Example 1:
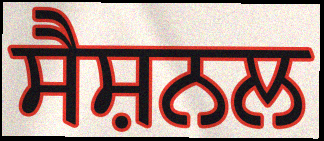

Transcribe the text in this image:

ਸੈਸ਼ਨਲ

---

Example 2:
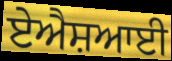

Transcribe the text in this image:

ਏਐਸ਼ਆਈ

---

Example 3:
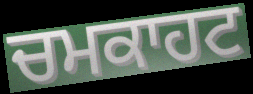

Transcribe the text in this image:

ਚਮਕਾਹਟ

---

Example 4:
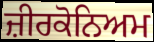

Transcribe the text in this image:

ਜ਼ੀਰਕੋਨਿਅਮ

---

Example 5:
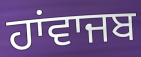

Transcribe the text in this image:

ਹਾਂਵਾਜਬ